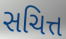
સચિત્ત